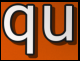
qu